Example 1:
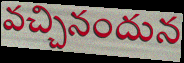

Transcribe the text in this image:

వచ్చినందున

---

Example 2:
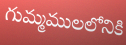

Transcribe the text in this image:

గుమ్మములలోనికి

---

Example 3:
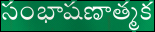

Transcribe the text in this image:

సంభాషణాత్మక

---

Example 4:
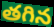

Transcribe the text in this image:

తగిన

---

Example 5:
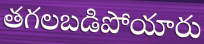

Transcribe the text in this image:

తగలబడిపోయారు